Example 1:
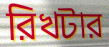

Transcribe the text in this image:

রিখটার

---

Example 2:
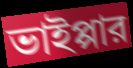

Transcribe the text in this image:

ভাইপ্পার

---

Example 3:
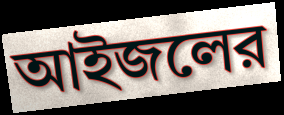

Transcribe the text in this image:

আইজলের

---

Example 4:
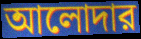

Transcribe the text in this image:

আলোদার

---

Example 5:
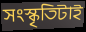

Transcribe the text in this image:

সংস্কৃতিটাই